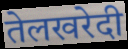
तेलखरेदी